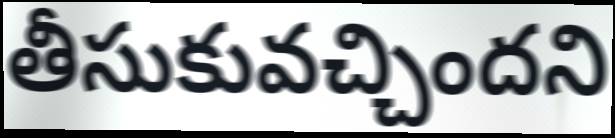
తీసుకువచ్చిందని